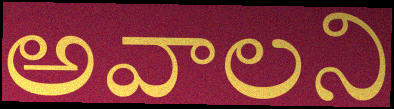
అవాలని